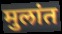
मुलांत